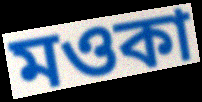
মওকা